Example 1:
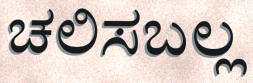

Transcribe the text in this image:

ಚಲಿಸಬಲ್ಲ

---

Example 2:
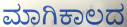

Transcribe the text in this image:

ಮಾಗಿಕಾಲದ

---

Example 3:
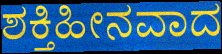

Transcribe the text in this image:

ಶಕ್ತಿಹೀನವಾದ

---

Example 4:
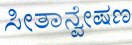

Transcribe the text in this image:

ಸೀತಾನ್ವೇಷಣ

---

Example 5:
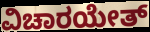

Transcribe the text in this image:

ವಿಚಾರಯೇತ್